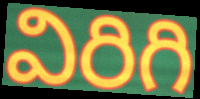
విరిగి